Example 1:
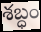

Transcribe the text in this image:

శబ్ధం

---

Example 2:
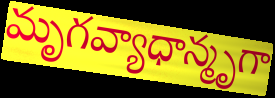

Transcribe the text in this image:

మృగవ్యాధాన్మృగా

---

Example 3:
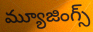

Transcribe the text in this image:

మ్యూజింగ్స్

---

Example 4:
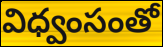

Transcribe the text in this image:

విధ్వంసంతో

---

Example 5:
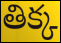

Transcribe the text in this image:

తిక్క